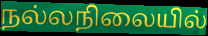
நல்லநிலையில்